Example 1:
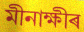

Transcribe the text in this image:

মীনাক্ষীৰ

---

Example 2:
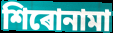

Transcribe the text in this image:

শিৰোনামা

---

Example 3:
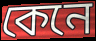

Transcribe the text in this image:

কেনে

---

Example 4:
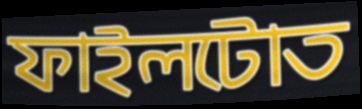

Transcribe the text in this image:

ফাইলটোত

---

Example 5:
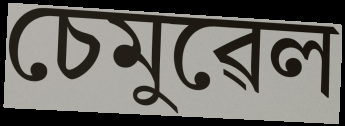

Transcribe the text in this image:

চেমুৱেল